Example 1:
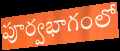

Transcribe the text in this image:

పూర్వభాగంలో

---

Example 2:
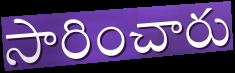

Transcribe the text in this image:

సారించారు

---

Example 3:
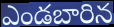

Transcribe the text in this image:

ఎండబారిన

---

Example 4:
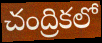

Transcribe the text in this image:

చంద్రికలో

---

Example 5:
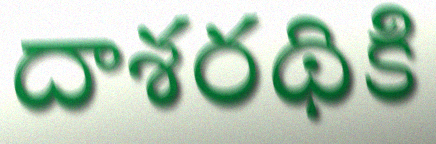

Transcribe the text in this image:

దాశరథికి